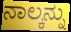
ನಾಲ್ಕನ್ನು